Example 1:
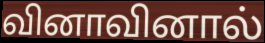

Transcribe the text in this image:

வினாவினால்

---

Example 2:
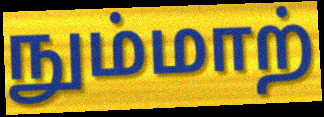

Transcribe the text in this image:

நும்மாற்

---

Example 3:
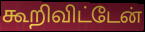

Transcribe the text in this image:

கூறிவிட்டேன்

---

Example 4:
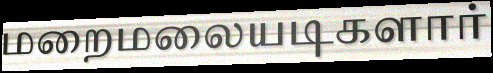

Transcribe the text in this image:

மறைமலையடிகளார்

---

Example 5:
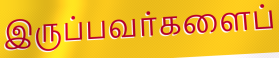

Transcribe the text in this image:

இருப்பவர்களைப்